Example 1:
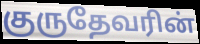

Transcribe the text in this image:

குருதேவரின்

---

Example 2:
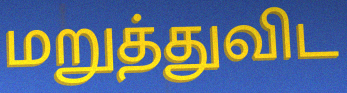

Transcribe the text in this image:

மறுத்துவிட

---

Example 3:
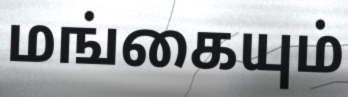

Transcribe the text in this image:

மங்கையும்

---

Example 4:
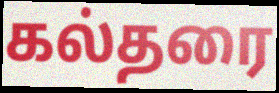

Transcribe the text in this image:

கல்தரை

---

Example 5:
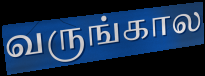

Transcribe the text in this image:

வருங்கால